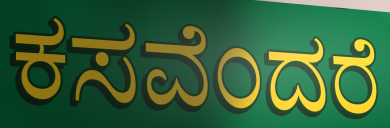
ಕಸವೆಂದರೆ